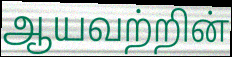
ஆயவற்றின்